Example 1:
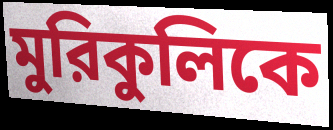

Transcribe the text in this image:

মুরিকুলিকে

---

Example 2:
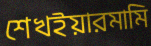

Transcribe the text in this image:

শেখইয়ারমামি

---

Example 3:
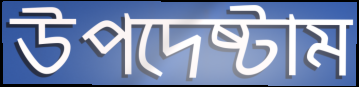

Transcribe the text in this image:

উপদেষ্টাম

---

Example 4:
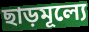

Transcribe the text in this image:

ছাড়মূল্যে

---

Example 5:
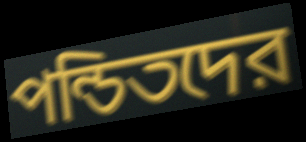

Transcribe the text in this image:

পন্ডিতদের